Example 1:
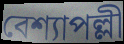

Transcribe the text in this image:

বেশ্যাপল্লী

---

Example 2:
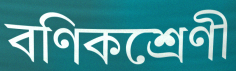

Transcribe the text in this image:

বণিকশ্রেণী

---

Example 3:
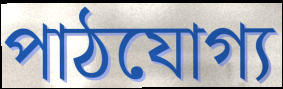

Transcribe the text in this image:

পাঠযোগ্য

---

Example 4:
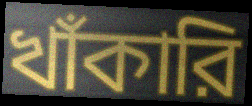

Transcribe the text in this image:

খাঁকারি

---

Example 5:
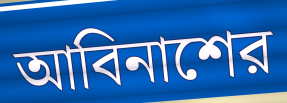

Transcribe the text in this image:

আবিনাশের